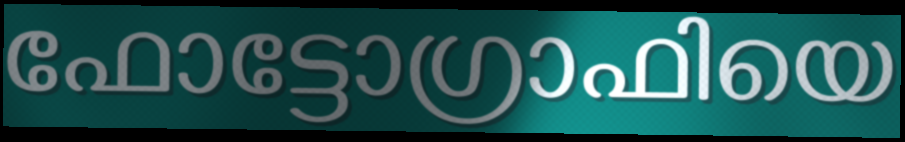
ഫോട്ടോഗ്രാഫിയെ